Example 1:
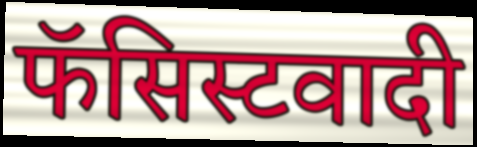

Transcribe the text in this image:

फॅसिस्टवादी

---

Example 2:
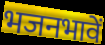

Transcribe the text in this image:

भजनभावें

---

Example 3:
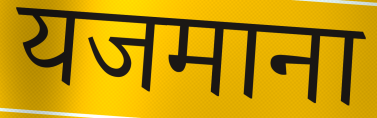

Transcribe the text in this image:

यजमाना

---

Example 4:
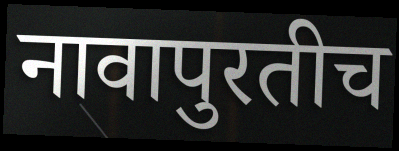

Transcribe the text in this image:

नावापुरतीच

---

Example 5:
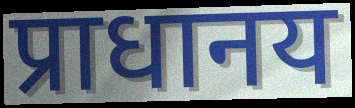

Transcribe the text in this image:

प्राधानय